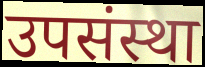
उपसंस्था